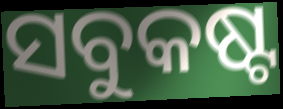
ସବୁକଷ୍ଟ